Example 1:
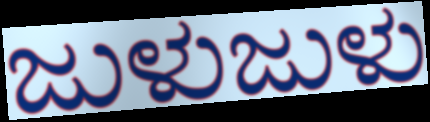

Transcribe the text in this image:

ಜುಳುಜುಳು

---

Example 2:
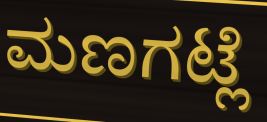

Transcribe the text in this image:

ಮಣಗಟ್ಲೆ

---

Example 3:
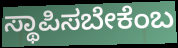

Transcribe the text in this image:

ಸ್ಥಾಪಿಸಬೇಕೆಂಬ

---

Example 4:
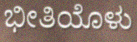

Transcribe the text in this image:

ಭೀತಿಯೊಳು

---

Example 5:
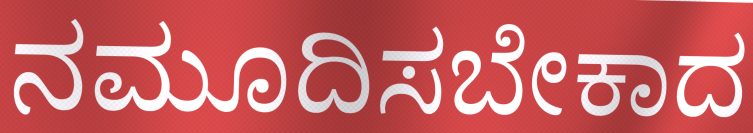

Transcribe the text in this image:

ನಮೂದಿಸಬೇಕಾದ